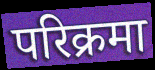
परिक्रमा